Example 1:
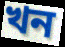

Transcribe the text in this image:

খন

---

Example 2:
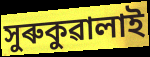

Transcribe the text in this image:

সুৰুকুৱালাই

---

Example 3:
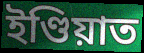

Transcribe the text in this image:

ইণ্ডিয়াত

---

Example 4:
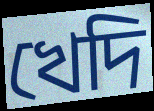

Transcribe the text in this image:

খেদি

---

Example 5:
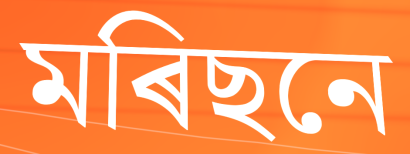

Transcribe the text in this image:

মৰিছনে